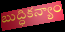
బుద్ధికన్యాం